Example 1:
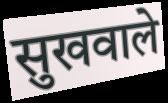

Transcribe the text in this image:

सुखवाले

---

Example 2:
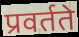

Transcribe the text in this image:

प्रवर्तते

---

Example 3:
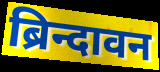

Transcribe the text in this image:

ब्रिन्दावन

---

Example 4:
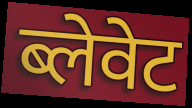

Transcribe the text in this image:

ब्लेवेट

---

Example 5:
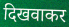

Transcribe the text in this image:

दिखवाकर